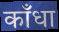
काँधा